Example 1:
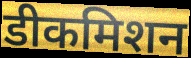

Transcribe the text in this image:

डीकमिशन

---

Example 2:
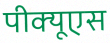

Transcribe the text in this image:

पीक्यूएस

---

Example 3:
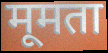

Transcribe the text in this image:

मूमता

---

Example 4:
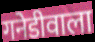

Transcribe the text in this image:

गनेडीवाला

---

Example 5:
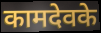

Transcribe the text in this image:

कामदेवके